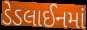
ડેડલાઈનમાં